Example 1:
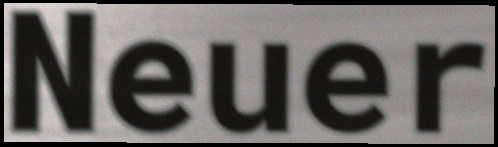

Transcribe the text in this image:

Neuer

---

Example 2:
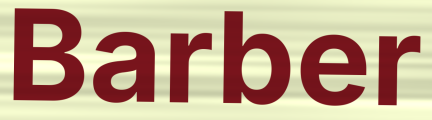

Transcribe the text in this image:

Barber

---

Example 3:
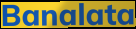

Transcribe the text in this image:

Banalata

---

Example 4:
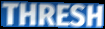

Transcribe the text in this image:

THRESH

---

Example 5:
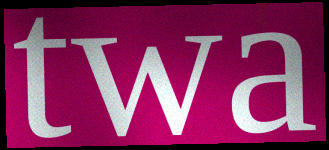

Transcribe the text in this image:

twa